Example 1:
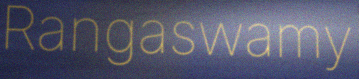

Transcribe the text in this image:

Rangaswamy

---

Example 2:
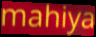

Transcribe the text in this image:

mahiya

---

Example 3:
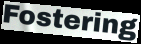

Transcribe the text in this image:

Fostering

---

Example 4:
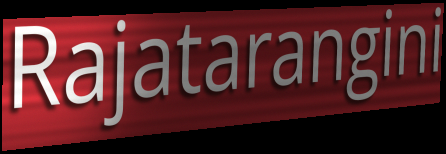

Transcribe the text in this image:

Rajatarangini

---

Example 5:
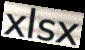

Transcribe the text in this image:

xlsx